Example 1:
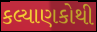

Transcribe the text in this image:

કલ્યાણકોથી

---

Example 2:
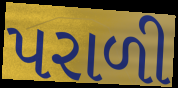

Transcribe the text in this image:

પરાળી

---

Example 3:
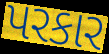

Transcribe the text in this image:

પરકાર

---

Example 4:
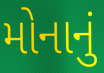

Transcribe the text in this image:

મોનાનું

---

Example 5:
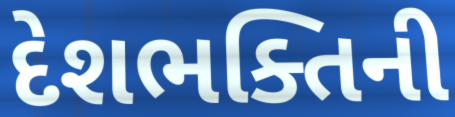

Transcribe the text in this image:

દેશભક્તિની